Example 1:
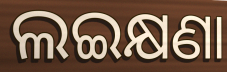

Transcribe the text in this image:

ଲଇକ୍ଷଣା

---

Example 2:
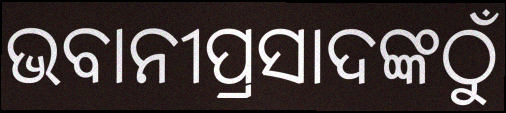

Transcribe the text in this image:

ଭବାନୀପ୍ରସାଦଙ୍କଠୁଁ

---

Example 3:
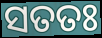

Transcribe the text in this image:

ସତତଃ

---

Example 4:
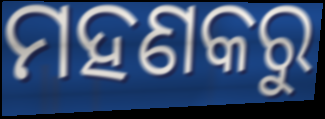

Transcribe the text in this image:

ମହଣକରୁ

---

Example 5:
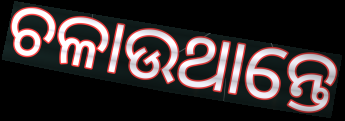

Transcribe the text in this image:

ଚଳାଉଥାନ୍ତେ